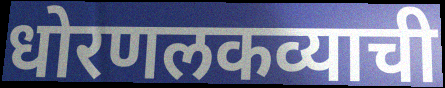
धोरणलकव्याची